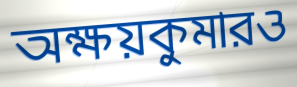
অক্ষয়কুমারও